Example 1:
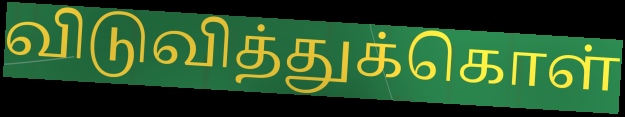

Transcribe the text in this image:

விடுவித்துக்கொள்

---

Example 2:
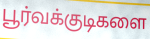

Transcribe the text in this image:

பூர்வக்குடிகளை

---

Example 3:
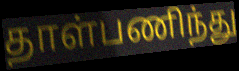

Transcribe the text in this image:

தாள்பணிந்து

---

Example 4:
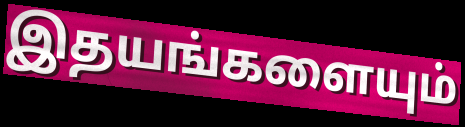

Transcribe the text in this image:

இதயங்களையும்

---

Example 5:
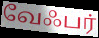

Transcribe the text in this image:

வேஃபர்